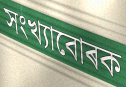
সংখ্যাবোৰক